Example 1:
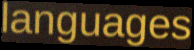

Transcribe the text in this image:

languages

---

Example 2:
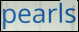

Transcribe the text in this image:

pearls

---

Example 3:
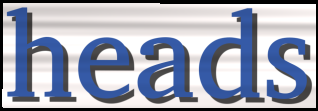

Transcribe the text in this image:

heads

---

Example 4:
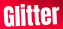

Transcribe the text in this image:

Glitter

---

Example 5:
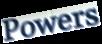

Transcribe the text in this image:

Powers